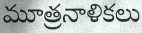
మూత్రనాళికలు